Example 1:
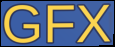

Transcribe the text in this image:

GFX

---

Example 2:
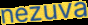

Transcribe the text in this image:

nezuva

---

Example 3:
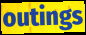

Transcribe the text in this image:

outings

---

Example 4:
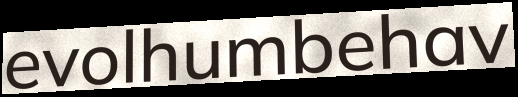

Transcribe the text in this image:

evolhumbehav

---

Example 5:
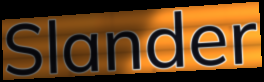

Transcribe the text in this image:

Slander